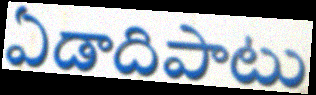
ఏడాదిపాటు